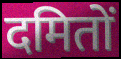
दमितों